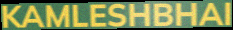
KAMLESHBHAI